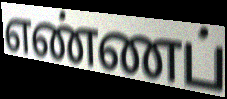
எண்ணப்